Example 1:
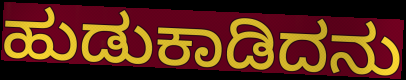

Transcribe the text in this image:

ಹುಡುಕಾಡಿದನು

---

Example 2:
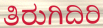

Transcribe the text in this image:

ತಿರುಗಿದಿರಿ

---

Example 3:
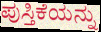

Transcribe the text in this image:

ಪುಸ್ತಿಕೆಯನ್ನು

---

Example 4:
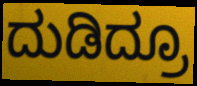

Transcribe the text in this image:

ದುಡಿದ್ರೂ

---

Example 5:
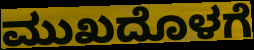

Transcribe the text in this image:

ಮುಖದೊಳಗೆ